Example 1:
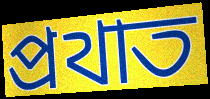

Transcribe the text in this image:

প্ৰথাত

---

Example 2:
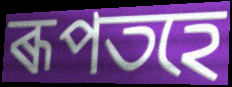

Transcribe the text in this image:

ৰূপতহে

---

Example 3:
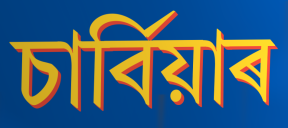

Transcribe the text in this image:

চাৰ্বিয়াৰ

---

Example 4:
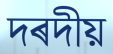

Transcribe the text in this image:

দৰদীয়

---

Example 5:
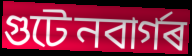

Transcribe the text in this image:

গুটেনবাৰ্গৰ